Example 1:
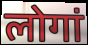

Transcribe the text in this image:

लोगां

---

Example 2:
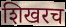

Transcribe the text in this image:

शिखरच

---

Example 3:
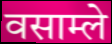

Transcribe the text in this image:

वसाम्ले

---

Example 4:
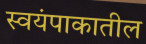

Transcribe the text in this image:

स्वयंपाकातील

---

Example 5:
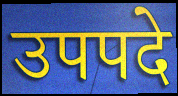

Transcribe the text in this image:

उपपदे